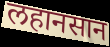
लहानसान